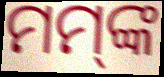
ମମ୍‌ଙ୍କ